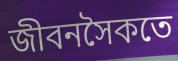
জীবনসৈকতে